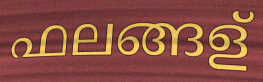
ഫലങ്ങള്